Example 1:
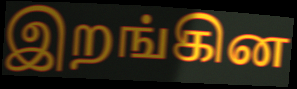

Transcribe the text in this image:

இறங்கின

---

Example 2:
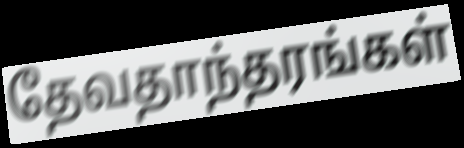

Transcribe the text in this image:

தேவதாந்தரங்கள்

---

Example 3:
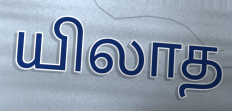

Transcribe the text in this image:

யிலாத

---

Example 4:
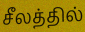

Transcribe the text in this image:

சீலத்தில்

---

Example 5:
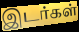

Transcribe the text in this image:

இடர்கள்